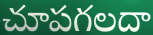
చూపగలదా